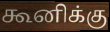
கூனிக்கு